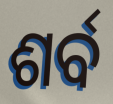
ଶର୍ବ